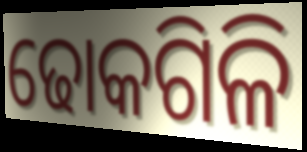
ଢୋକଗିଳି